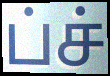
ப்ச்